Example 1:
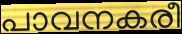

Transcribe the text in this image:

പാവനകരീ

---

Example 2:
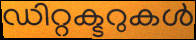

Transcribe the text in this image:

ഡിറ്റക്ടറുകൾ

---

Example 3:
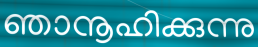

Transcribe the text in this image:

ഞാനൂഹിക്കുന്നു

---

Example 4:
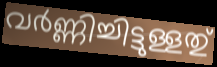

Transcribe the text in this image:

വർണ്ണിച്ചിട്ടുള്ളതു്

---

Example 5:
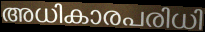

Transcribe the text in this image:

അധികാരപരിധി